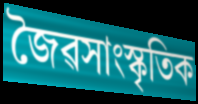
জৈৱসাংস্কৃতিক